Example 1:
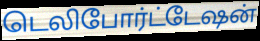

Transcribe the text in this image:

டெலிபோர்ட்டேஷன்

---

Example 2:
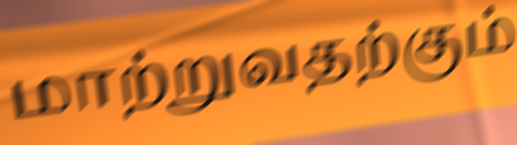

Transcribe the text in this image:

மாற்றுவதற்கும்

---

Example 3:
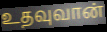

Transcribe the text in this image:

உதவுவான்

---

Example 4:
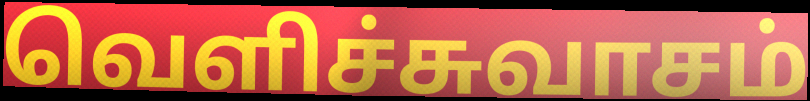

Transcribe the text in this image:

வெளிச்சுவாசம்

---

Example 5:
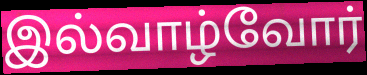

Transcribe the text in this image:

இல்வாழ்வோர்